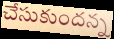
చేసుకుందన్న